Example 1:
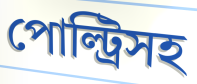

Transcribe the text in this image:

পোল্ট্রিসহ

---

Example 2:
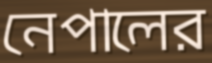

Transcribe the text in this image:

নেপালের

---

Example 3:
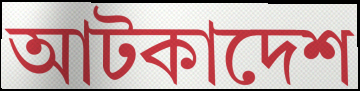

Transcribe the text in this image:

আটকাদেশ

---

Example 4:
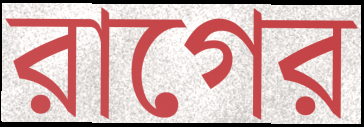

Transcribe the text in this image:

রাগের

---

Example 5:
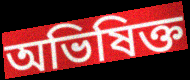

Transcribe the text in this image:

অভিষিক্ত